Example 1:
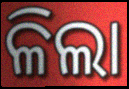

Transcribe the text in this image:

ଳିଲା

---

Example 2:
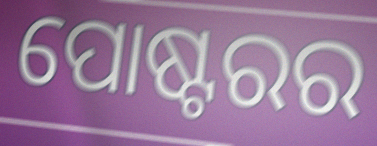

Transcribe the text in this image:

ପୋଷ୍ଟରର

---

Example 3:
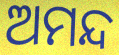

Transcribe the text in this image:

ଅମନ୍ଦ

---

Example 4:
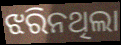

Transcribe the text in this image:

ଝରିନଥିଲା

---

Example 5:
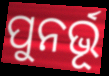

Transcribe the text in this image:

ପୁନର୍ଭୂ